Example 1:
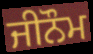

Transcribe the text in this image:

ਜੀਨੌਮ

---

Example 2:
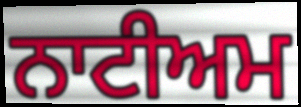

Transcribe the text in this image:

ਨਾਟੀਅਮ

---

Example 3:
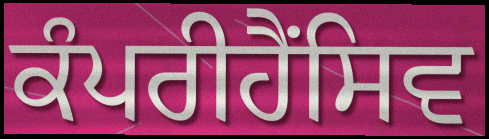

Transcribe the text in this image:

ਕੰਪਰੀਹੈਂਸਿਵ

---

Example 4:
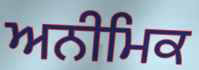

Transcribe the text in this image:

ਅਨੀਮਿਕ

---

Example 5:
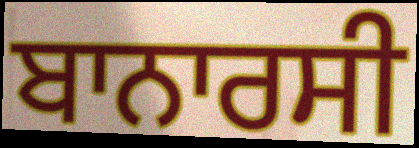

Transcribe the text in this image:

ਬਾਨਾਰਸੀ